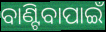
ବାଣ୍ଟିବାପାଇଁ